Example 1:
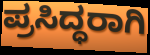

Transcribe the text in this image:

ಪ್ರಸಿದ್ಧರಾಗಿ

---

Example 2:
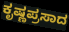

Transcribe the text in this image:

ಕೃಷ್ಣಪ್ರಸಾದ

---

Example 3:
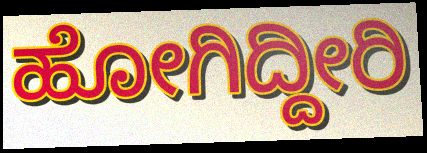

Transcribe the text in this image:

ಹೋಗಿದ್ದೀರಿ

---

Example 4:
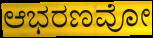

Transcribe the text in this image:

ಆಭರಣವೋ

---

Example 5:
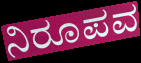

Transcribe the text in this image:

ನಿರೂಪವ